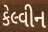
કેલ્વીન